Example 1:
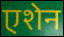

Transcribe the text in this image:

एशेन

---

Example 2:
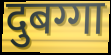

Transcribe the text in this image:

दुबग्गा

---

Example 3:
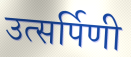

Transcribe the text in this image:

उत्सर्पिणी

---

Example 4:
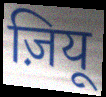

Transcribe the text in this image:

ज़ियू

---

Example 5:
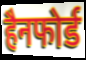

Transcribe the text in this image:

हैनफोर्ड